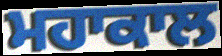
ਮਹਾਕਾਲ